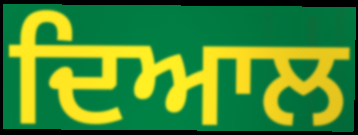
ਦਿਆਲ